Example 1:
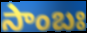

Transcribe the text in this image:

సాంబః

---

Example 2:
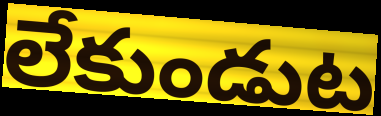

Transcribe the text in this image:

లేకుండుట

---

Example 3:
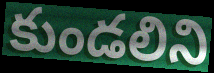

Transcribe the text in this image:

కుండలిని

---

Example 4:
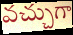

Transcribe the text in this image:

వచ్చుగా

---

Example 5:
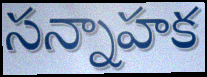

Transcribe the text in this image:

సన్నాహక